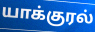
யாக்குரல்